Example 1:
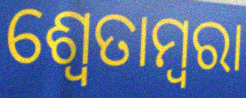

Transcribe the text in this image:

ଶ୍ୱେତାମ୍ବରା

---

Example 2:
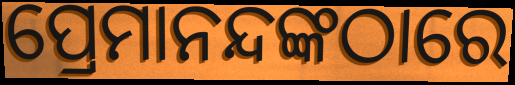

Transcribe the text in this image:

ପ୍ରେମାନନ୍ଦଙ୍କଠାରେ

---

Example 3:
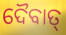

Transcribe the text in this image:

ଦୈବାତ୍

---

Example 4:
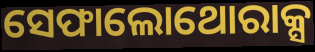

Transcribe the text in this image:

ସେଫାଲୋଥୋରାକ୍ସ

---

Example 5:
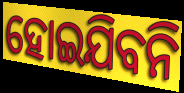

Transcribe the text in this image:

ହୋଇଯିବନି